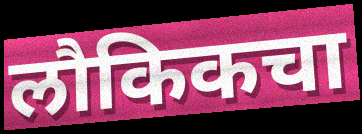
लौकिकचा